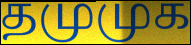
தமுமுக